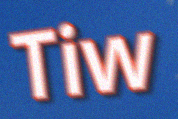
Tiw